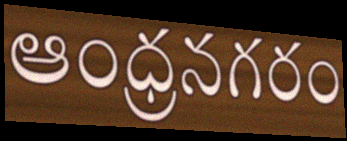
ఆంధ్రనగరం